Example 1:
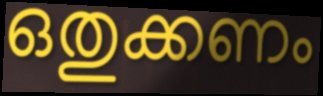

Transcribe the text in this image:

ഒതുക്കണം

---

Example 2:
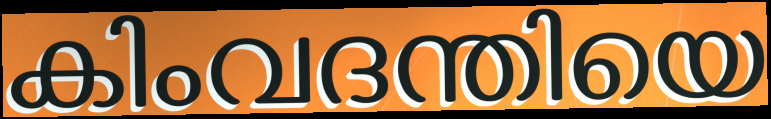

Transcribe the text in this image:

കിംവദന്തിയെ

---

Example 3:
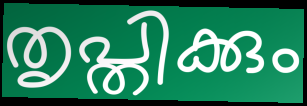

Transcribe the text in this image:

തൃപ്തിക്കും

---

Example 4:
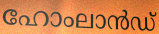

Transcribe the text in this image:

ഹോംലാൻഡ്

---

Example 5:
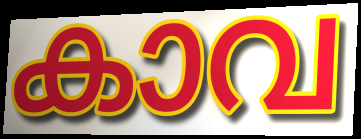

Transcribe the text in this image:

കാവ